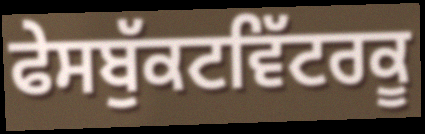
ਫੇਸਬੁੱਕਟਵਿੱਟਰਕੂ